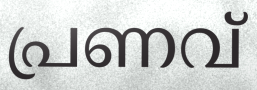
പ്രണവ്